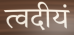
त्वदीयं